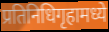
प्रतिनिधिगृहामध्ये